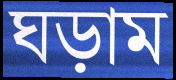
ঘড়াম